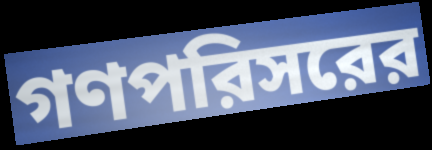
গণপরিসরের